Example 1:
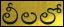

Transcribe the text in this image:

లీలలో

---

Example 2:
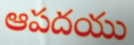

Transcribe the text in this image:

ఆపదయు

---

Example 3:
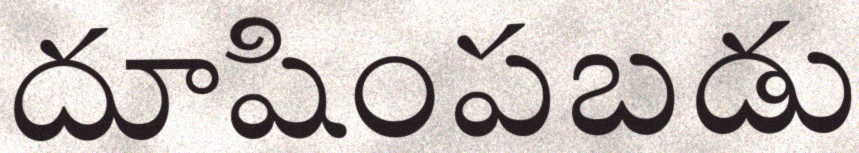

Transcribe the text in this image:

దూషింపబడు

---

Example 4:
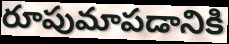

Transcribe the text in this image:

రూపుమాపడానికి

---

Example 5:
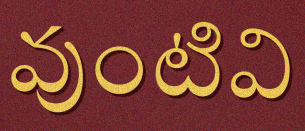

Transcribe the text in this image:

వుంటివి